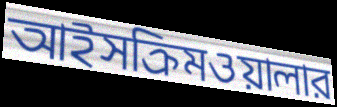
আইসক্রিমওয়ালার